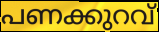
പണക്കുറവ്